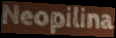
Neopilina